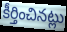
కీర్తించినట్లు